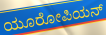
ಯೂರೋಪಿಯನ್